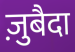
ज़ुबैदा